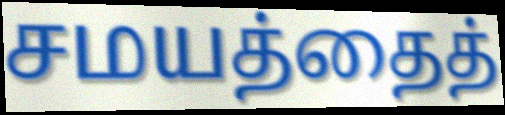
சமயத்தைத்